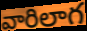
వారిలాగ